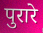
पुरारे